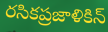
రసికప్రజాళికిన్